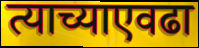
त्याच्याएवढा